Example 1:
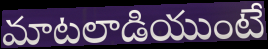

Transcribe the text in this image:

మాటలాడియుంటే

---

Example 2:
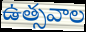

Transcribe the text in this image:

ఉత్సవాల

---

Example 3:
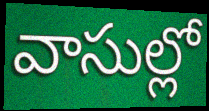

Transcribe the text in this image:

వాసుల్లో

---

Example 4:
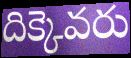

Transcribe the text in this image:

దిక్కెవరు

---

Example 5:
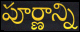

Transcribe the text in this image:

పూర్ణాన్ని